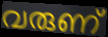
വരുണ്